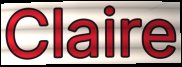
Claire